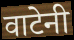
वाटेनी